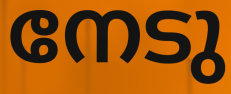
നേടു